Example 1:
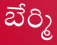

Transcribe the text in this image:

బేర్మి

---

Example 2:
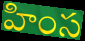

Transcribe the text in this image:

హింస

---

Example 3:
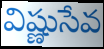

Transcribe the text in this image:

విష్ణుసేవ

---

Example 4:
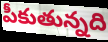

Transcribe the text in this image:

పీకుతున్నది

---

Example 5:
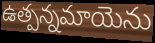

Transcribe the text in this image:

ఉత్పన్నమాయెను